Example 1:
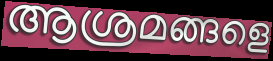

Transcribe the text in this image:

ആശ്രമങ്ങളെ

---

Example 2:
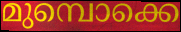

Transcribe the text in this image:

മുമ്പൊക്കെ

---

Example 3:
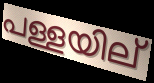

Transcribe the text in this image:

പള്ളയില്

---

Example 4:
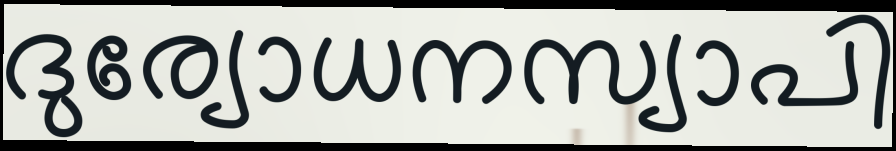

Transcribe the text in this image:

ദുര്യോധനസ്യാപി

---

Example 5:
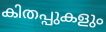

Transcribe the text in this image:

കിതപ്പുകളും